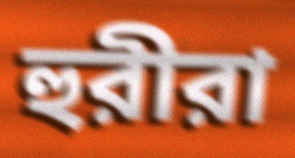
হুরীরা